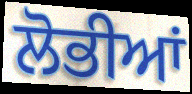
ਲੋਭੀਆਂ